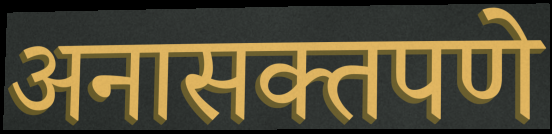
अनासक्तपणे